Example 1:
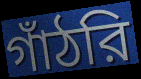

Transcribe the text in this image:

গাঁঠরি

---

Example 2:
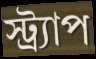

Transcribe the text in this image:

স্ট্র্যাপ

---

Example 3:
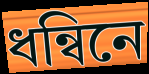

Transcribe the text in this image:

ধন্বিনে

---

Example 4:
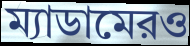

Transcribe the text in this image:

ম্যাডামেরও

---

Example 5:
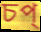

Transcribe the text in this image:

চপ্